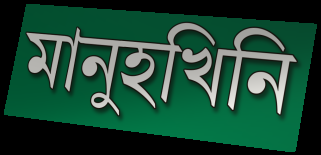
মানুহখিনি